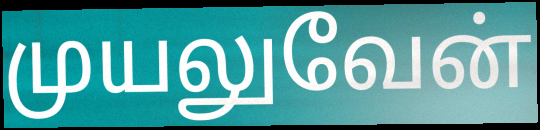
முயலுவேன்